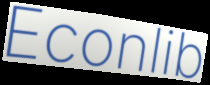
Econlib